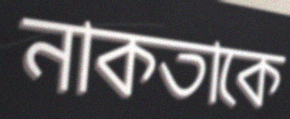
নাকতাকে